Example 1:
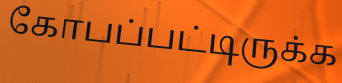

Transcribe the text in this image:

கோபப்பட்டிருக்க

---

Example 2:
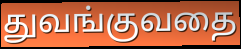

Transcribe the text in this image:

துவங்குவதை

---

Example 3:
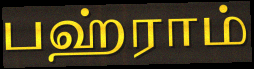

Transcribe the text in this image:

பஹ்ராம்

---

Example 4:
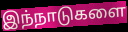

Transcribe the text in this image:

இந்நாடுகளை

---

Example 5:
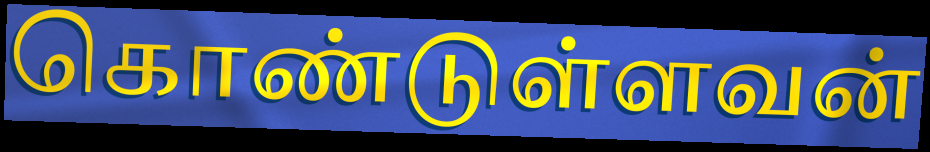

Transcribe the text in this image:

கொண்டுள்ளவன்